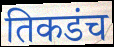
तिकडंच